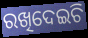
ରଖିଦେଇଚି